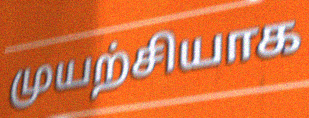
முயற்சியாக